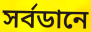
সর্বডানে